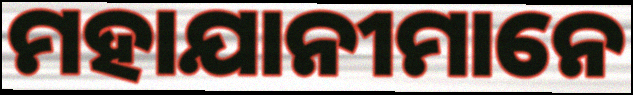
ମହାଯାନୀମାନେ